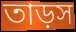
তাড়স